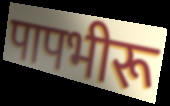
पापभीरू